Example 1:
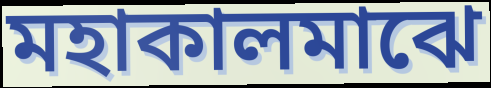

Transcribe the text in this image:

মহাকালমাঝে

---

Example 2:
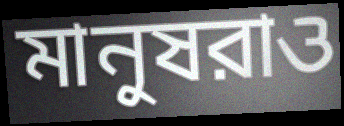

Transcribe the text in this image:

মানুষরাও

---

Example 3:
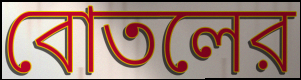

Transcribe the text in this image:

বোতলের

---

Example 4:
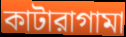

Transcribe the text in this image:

কাটারাগামা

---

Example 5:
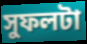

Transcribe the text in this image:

সুফলটা